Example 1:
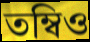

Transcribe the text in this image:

তম্বিও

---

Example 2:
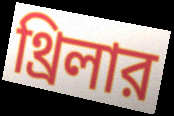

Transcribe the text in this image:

থ্রিলার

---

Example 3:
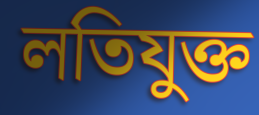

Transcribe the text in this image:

লতিযুক্ত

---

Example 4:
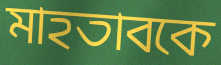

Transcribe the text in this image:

মাহতাবকে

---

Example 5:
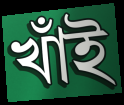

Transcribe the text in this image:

খাঁই